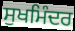
ਸੁਖਮਿੰਦਰ